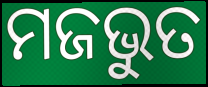
ମଜଭୁତ